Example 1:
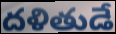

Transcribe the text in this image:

దళితుడే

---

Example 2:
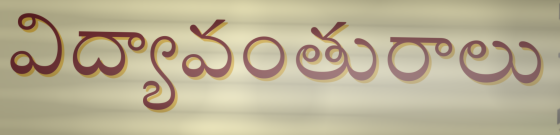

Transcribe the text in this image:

విద్యావంతురాలు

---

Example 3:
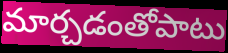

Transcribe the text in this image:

మార్చడంతోపాటు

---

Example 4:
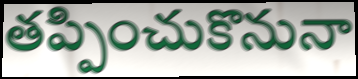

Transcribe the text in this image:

తప్పించుకొనునా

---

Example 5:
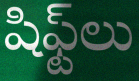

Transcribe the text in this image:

షిఫ్ట్‌లు